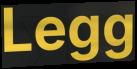
Legg